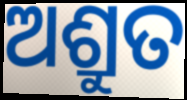
ଅଶ୍ରୁତ